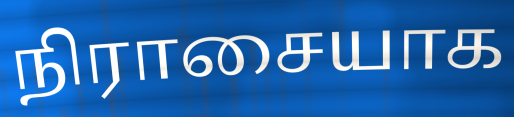
நிராசையாக